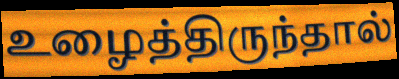
உழைத்திருந்தால்